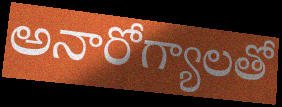
అనారోగ్యాలతో